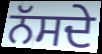
ਨੱਸਦੇ